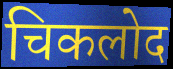
चिकलोद